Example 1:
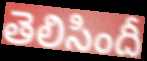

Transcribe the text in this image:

తెలిసిందీ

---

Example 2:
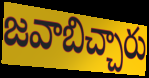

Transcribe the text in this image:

జవాబిచ్చారు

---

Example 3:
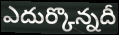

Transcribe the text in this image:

ఎదుర్కొన్నదీ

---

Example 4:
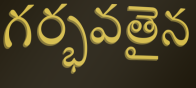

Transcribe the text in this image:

గర్భవతైన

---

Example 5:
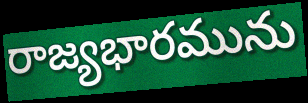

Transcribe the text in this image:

రాజ్యభారమును